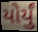
યોર્યું